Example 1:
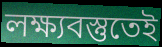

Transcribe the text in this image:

লক্ষ্যবস্তুতেই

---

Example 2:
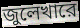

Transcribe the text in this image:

জুলেখারে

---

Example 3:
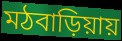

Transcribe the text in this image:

মঠবাড়িয়ায়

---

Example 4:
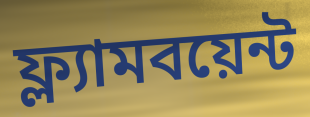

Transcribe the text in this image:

ফ্ল্যামবয়েন্ট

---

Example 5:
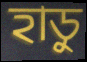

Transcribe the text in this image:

হাডু